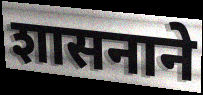
शासनाने